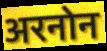
अरनोन